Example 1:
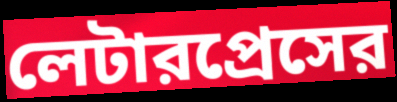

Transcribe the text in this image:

লেটারপ্রেসের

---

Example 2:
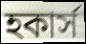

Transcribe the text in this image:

হকার্স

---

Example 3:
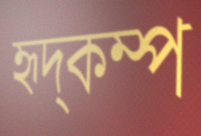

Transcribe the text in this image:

হৃদ্কম্প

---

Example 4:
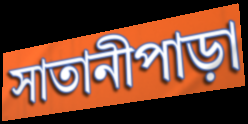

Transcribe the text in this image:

সাতানীপাড়া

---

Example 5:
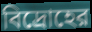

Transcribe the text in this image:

বিদ্রোহের